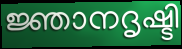
ജ്ഞാനദൃഷ്ടി